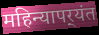
महिन्यापर्यंत